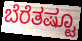
ಬೆರೆತಷ್ಟೂ